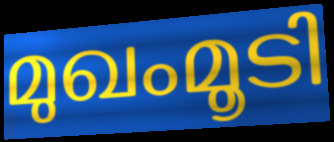
മുഖംമൂടി